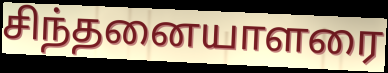
சிந்தனையாளரை